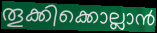
തൂക്കിക്കൊല്ലാൻ